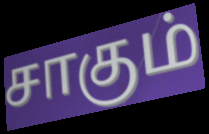
சாகும்